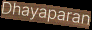
Dhayaparan